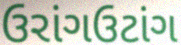
ઉરાંગઉટાંગ